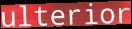
ulterior